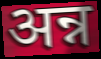
अन्न